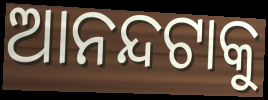
ଆନନ୍ଦଟାକୁ